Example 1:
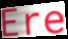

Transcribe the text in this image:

Ere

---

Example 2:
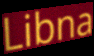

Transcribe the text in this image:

Libna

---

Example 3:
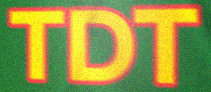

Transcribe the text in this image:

TDT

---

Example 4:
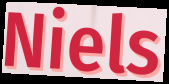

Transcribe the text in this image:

Niels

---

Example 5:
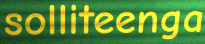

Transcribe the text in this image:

solliteenga